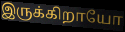
இருக்கிறாயோ